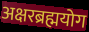
अक्षरब्रह्मयोग